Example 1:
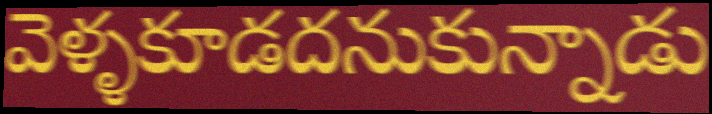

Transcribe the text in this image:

వెళ్ళకూడదనుకున్నాడు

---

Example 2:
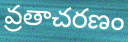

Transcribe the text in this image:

వ్రతాచరణం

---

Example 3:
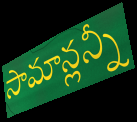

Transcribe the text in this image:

సామాన్లన్నీ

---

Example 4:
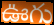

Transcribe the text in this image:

ఊగు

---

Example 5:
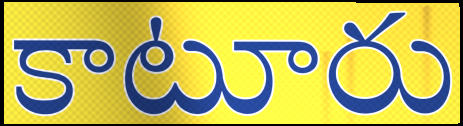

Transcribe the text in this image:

కాటూరు